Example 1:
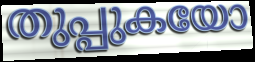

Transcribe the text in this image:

തുപ്പുകയോ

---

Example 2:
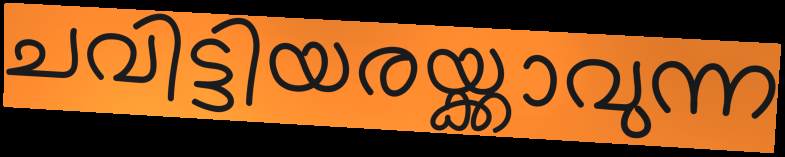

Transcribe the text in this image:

ചവിട്ടിയരയ്ക്കാവുന്ന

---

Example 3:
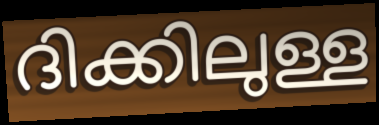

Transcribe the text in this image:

ദിക്കിലുള്ള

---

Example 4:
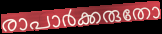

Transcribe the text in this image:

രാപാർക്കരുതോ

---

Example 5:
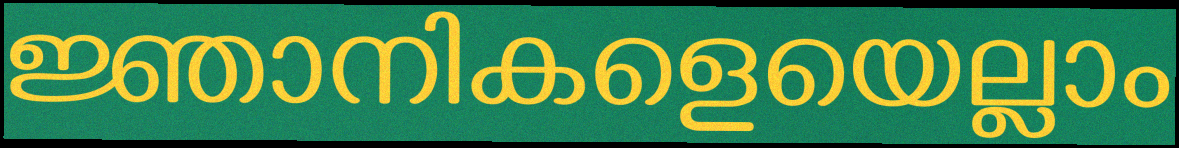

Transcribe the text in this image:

ജ്ഞാനികളെയെല്ലാം